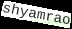
shyamrao